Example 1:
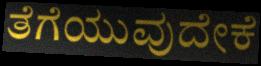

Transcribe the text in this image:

ತೆಗೆಯುವುದೇಕೆ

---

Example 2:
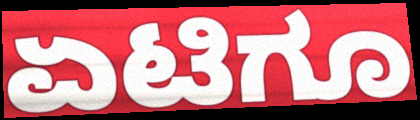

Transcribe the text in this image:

ಏಟಿಗೂ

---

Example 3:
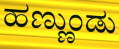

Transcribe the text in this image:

ಹಣ್ಣುಂಡು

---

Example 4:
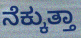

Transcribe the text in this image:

ನೆಕ್ಕುತ್ತಾ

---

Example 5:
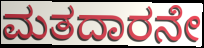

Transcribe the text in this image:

ಮತದಾರನೇ